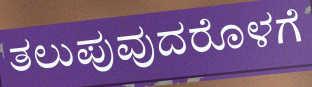
ತಲುಪುವುದರೊಳಗೆ